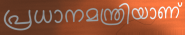
പ്രധാനമന്ത്രിയാണ്